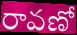
రావణో